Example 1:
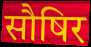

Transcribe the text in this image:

सौषिर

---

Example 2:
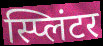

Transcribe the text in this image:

स्प्लिंटर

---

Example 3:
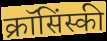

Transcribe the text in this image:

क्रॉसिंस्की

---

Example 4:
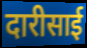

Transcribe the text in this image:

दारीसाई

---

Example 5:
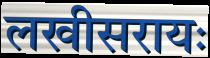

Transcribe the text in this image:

लखीसरायः